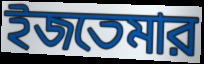
ইজতেমার